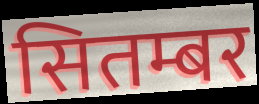
सितम्बर